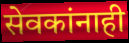
सेवकांनाही